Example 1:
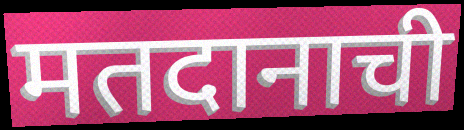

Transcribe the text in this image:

मतदानाची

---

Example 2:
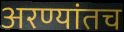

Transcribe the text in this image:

अरण्यांतच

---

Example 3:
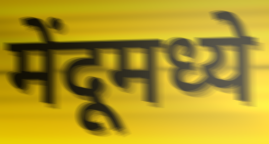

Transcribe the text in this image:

मेंदूमध्ये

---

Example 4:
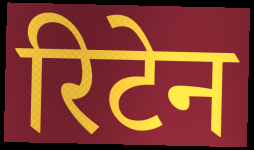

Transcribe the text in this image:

रिटेन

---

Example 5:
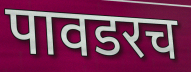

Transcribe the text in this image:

पावडरच